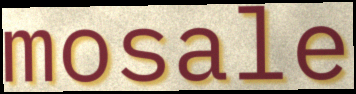
mosale